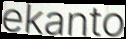
ekanto